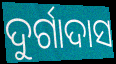
ଦୁର୍ଗାଦାସ